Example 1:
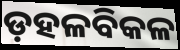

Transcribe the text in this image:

ଡ଼ହଳବିକଳ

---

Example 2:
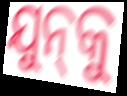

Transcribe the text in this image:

ଯୁନ୍‍କୁ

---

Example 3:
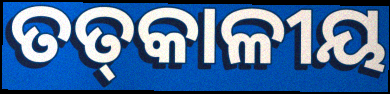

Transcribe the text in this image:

ତତ୍‌କାଳୀୟ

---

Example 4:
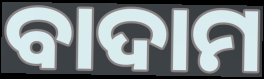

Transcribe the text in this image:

ବାଦାମ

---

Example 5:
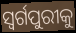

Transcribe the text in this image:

ସ୍ୱର୍ଗପୁରୀକୁ